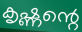
കൃഷ്ണന്റെ